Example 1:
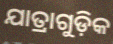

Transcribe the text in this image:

ଯାତ୍ରାଗୁଡ଼ିକ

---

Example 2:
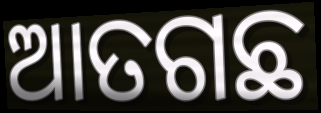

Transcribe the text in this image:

ଆତଗଛ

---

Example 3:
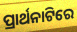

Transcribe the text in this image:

ପ୍ରାର୍ଥନାଟିରେ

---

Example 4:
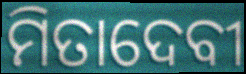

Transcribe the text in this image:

ମିତାଦେବୀ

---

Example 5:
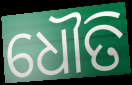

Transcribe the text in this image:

ଧୌତି